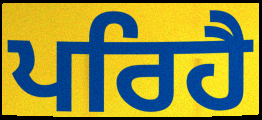
ਪਰਿਹੈ